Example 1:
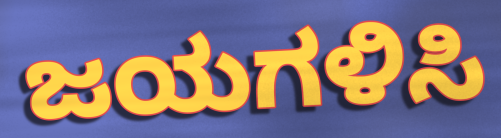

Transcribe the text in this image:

ಜಯಗಳಿಸಿ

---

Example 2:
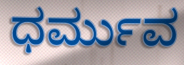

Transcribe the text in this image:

ಧರ್ಮುವ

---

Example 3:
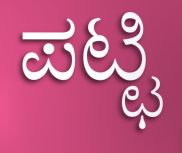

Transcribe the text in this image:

ಪಟ್ಟಿ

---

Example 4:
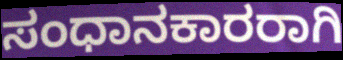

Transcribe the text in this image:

ಸಂಧಾನಕಾರರಾಗಿ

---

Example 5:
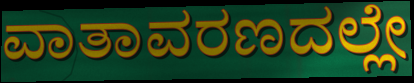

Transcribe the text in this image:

ವಾತಾವರಣದಲ್ಲೇ